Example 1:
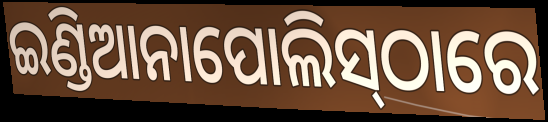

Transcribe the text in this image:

ଇଣ୍ଡିଆନାପୋଲିସ୍‍ଠାରେ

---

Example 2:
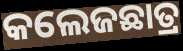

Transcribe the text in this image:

କଲେଜଛାତ୍ର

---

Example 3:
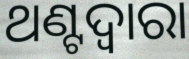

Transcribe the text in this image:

ଥଣ୍ଟଦ୍ୱାରା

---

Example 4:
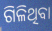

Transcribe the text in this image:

ଗିଳିଥିବା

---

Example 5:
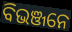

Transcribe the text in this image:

ବିଭଞ୍ଜନେ